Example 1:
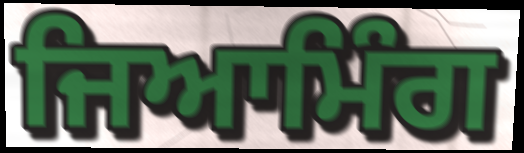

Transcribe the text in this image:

ਜਿਆਮਿੰਗ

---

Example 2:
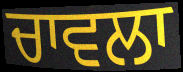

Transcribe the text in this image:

ਚਾਵਲਾ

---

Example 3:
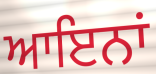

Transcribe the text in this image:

ਆਇਨਾਂ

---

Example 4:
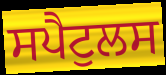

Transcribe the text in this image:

ਸਪੈਟੁਲਸ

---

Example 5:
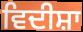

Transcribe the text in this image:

ਵਿਦੀਸ਼ਾ